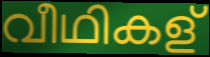
വീഥികള്